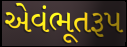
એવંભૂતરૂપ